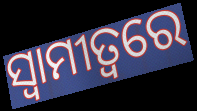
ସ୍ୱାମୀତ୍ୱରେ